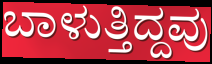
ಬಾಳುತ್ತಿದ್ದವು